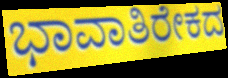
ಭಾವಾತಿರೇಕದ